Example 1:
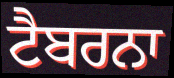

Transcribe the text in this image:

ਟੈਬਰਨਾ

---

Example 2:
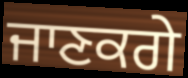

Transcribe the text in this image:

ਜਾਣਕਗੇ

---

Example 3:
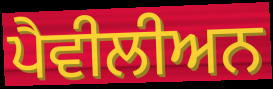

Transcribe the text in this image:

ਪੈਵੀਲੀਅਨ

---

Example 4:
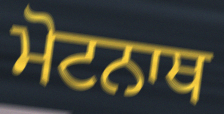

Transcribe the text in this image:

ਮੋਟਨਾਥ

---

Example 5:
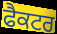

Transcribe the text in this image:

ਫੈਕਟਰ